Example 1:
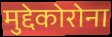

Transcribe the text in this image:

मुद्देकोरोना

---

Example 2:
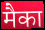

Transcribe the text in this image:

मैका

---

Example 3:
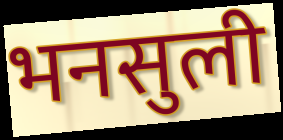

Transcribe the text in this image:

भनसुली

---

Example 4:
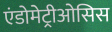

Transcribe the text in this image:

एंडोमेट्रीओसिस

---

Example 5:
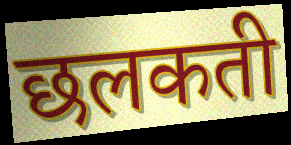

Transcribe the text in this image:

छलकती